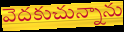
వెదకుచున్నాను